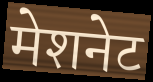
मेशनेट